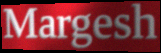
Margesh